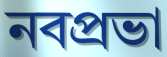
নবপ্রভা